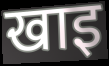
खाइ